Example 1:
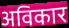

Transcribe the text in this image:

अविकार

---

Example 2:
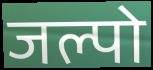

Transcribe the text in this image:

जल्पो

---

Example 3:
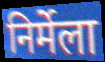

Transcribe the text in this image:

निर्मेला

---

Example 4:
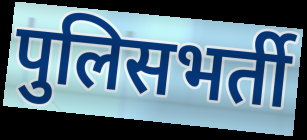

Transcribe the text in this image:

पुलिसभर्ती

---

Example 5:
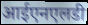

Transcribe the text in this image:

आईएनएलडी